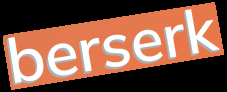
berserk